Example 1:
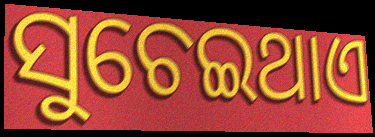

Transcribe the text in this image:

ସୁଚେଇଥାଏ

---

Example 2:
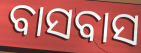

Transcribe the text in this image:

ବାସବାସ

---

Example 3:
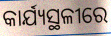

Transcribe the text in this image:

କାର୍ଯ୍ୟସ୍ଥଳୀରେ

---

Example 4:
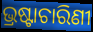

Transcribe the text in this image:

ଭ୍ରଷ୍ଟାଚାରିଣୀ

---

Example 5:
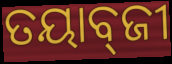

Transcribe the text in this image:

ତୟାବ୍‌ଜୀ